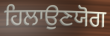
ਹਿਲਾਉਣਯੋਗ